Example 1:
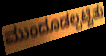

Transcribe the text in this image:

ಮುಂದೂಡಲ್ಪಟ್ಟಿತು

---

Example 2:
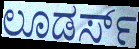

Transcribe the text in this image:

ಲೂಡರ್ಸ್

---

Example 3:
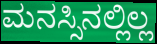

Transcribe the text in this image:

ಮನಸ್ಸಿನಲ್ಲಿಲ್ಲ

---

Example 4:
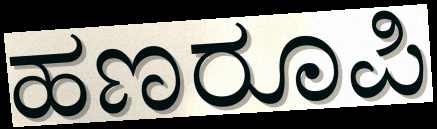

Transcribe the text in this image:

ಹಣರೂಪಿ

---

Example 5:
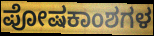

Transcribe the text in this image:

ಪೋಷಕಾಂಶಗಳ